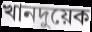
খানদুয়েক